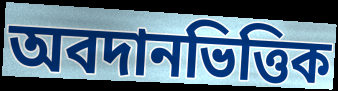
অবদানভিত্তিক